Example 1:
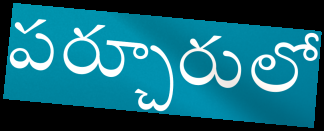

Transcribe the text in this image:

పర్చూరులో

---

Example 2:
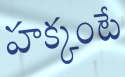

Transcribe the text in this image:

హక్కంటే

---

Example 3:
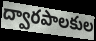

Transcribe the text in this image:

ద్వారపాలకుల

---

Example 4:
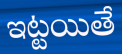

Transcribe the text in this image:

ఇట్టయితే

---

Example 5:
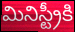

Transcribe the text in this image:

మినిస్ట్రీకి